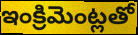
ఇంక్రిమెంట్లతో